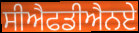
ਸੀਐਫਡੀਐਨਏ